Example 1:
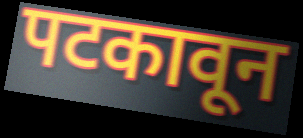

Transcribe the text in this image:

पटकावून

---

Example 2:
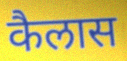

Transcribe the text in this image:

कैलास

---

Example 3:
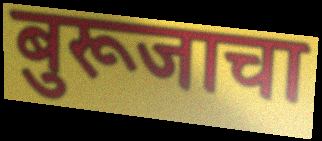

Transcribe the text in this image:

बुरूजाचा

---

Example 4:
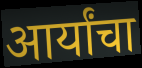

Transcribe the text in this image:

आर्यांचा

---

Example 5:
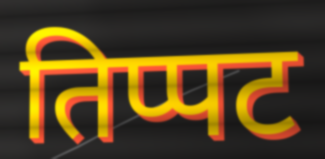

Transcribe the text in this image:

तिप्पट